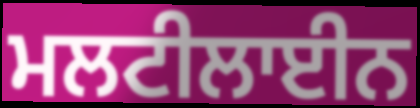
ਮਲਟੀਲਾਈਨ